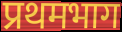
प्रथमभाग